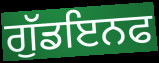
ਗੁੱਡਇਨਫ